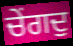
ਚੇਂਗਦੁ